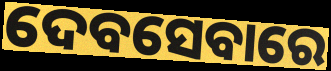
ଦେବସେବାରେ